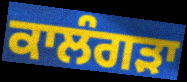
ਕਾਲੰਗੜਾ